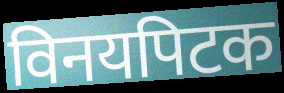
विनयपिटक